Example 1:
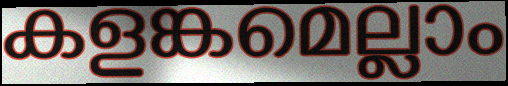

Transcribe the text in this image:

കളങ്കമെല്ലാം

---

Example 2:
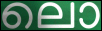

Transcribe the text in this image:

ലൊ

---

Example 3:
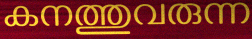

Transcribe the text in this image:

കനത്തുവരുന്ന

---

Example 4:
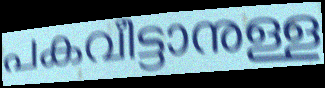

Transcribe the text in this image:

പകവീട്ടാനുള്ള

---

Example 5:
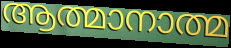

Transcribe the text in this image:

ആത്മാനാത്മ